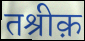
तश्रीक़